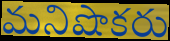
మనిషొకరు